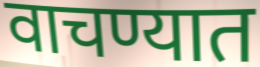
वाचण्यात